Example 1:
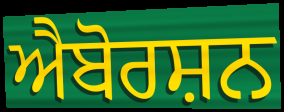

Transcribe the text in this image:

ਐਬੋਰਸ਼ਨ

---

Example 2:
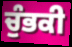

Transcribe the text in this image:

ਚੁੰਭਕੀ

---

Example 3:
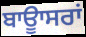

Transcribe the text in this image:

ਬਾਊਾਸਰਾਂ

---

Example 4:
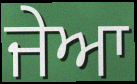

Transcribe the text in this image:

ਜੇਆ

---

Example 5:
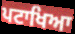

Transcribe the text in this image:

ਪਟਾਖਿਆ